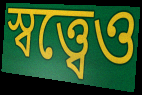
স্বত্ত্বেও